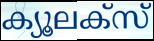
ക്യൂലക്സ്